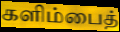
களிம்பைத்